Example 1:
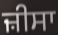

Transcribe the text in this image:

ਜ਼ੀਸਾ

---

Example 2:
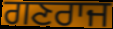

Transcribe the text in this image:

ਗਣਰਾਜ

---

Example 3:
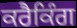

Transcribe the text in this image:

ਕਰੈਕਿੰਗ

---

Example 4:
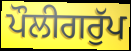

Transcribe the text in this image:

ਪੌਲੀਗਰੁੱਪ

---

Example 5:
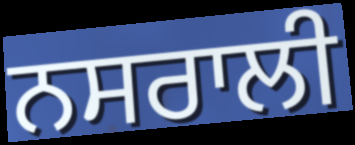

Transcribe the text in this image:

ਨਸਰਾਲੀ